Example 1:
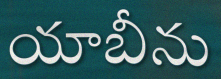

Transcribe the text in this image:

యాబీను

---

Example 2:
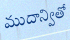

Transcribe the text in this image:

ముదాన్వితో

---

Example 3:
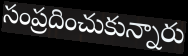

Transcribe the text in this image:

సంప్రదించుకున్నారు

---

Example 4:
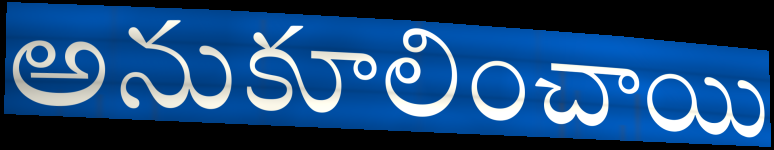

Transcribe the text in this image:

అనుకూలించాయి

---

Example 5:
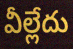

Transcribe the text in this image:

వీల్లేదు